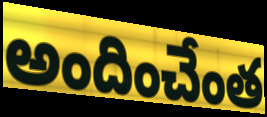
అందించేంత